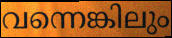
വന്നെങ്കിലും